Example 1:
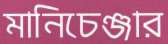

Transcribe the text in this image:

মানিচেঞ্জার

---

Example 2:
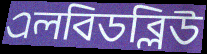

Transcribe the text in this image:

এলবিডব্লিউ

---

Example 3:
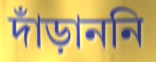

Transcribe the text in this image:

দাঁড়াননি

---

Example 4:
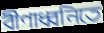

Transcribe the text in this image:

বীণাধ্বনিতে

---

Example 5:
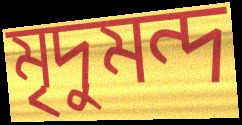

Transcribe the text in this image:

মৃদুমন্দ